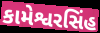
કામેશ્વરસિંહ